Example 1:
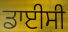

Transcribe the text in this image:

ਡਾਈਸੀ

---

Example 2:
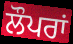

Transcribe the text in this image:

ਲੌਪਰਾਂ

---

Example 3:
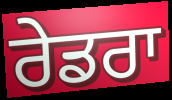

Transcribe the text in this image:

ਰੇਡਰਾ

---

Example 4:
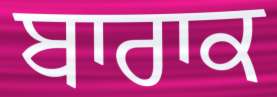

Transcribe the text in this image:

ਬਾਰਾਕ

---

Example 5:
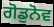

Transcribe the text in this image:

ਗੋਡੁਨੋਵ